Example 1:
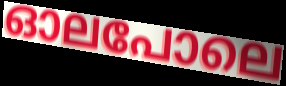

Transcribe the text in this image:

ഓലപോലെ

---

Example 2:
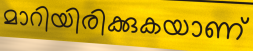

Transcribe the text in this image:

മാറിയിരിക്കുകയാണ്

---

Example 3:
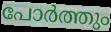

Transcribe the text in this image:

പോർത്തും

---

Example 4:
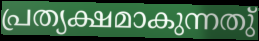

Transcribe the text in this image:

പ്രത്യക്ഷമാകുന്നതു്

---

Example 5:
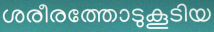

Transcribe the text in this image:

ശരീരത്തോടുകൂടിയ